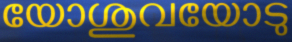
യോശുവയോടു